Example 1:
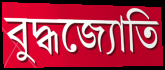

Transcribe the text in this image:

বুদ্ধজ্যোতি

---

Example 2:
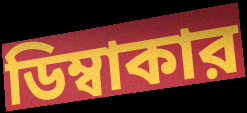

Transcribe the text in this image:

ডিম্বাকার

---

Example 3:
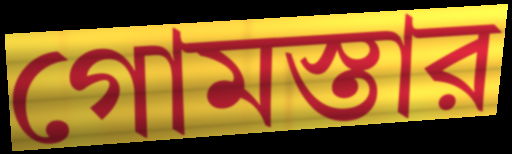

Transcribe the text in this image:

গোমস্তার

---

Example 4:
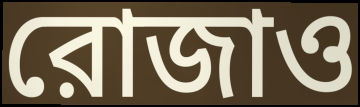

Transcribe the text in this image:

রোজাও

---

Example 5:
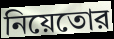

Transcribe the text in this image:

নিয়েতোর